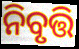
ନିବୃତ୍ତି